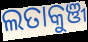
ଲତାକୁଞ୍ଜ